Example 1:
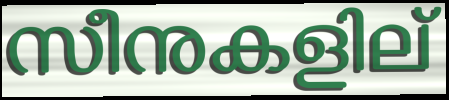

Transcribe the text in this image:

സീനുകളില്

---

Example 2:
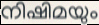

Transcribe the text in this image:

നിഷിമയും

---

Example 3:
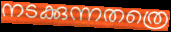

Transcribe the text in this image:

നടക്കുന്നതത്രെ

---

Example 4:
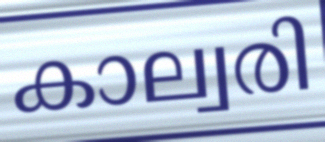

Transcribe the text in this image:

കാല്വരി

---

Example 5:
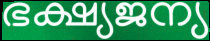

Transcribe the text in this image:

ഭക്ഷ്യജന്യ